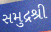
સમુદ્રશ્રી